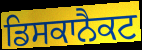
ਡਿਸਕਾਨੈਕਟ